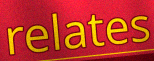
relates